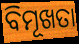
ବିମୂଖତା